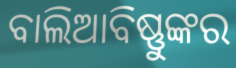
ବାଲିଆବିଷ୍ଣୁଙ୍କର